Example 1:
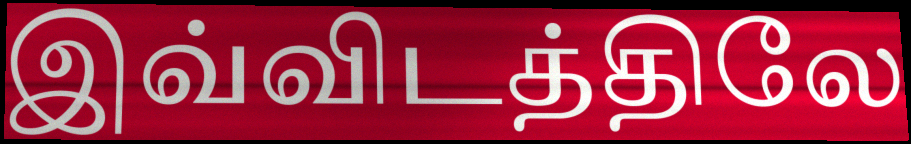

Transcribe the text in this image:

இவ்விடத்திலே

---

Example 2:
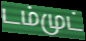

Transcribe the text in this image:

டம்முட்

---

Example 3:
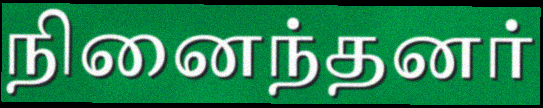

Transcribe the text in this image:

நினைந்தனர்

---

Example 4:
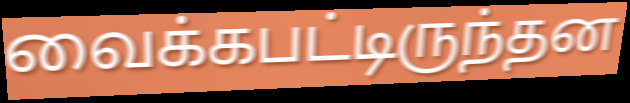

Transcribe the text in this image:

வைக்கபட்டிருந்தன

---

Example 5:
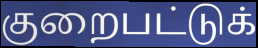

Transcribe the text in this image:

குறைபட்டுக்